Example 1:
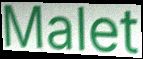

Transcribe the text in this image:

Malet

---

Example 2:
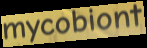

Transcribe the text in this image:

mycobiont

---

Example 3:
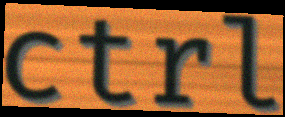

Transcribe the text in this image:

ctrl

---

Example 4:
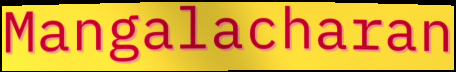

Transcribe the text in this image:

Mangalacharan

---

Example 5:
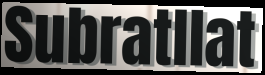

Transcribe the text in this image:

Subratllat